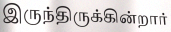
இருந்திருக்கின்றார்